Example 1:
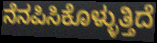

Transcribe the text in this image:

ನೆನಪಿಸಿಕೊಳ್ಳುತ್ತಿದೆ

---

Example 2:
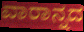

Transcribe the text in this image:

ವಾರಾನ್ನದ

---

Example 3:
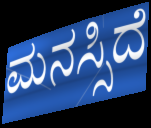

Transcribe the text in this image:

ಮನಸ್ಸಿದೆ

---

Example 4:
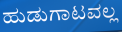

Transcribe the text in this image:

ಹುಡುಗಾಟವಲ್ಲ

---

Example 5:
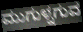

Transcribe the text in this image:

ಮುಗುಳ್ನಗುವ